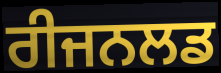
ਰੀਜਨਲਡ